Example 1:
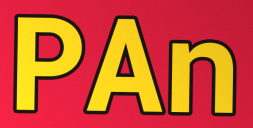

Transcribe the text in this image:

PAn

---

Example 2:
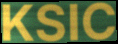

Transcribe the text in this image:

KSIC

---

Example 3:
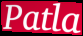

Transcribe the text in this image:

Patla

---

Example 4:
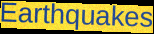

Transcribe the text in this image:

Earthquakes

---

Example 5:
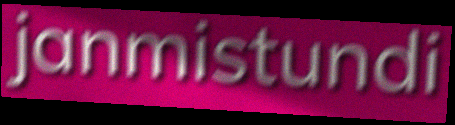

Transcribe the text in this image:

janmistundi